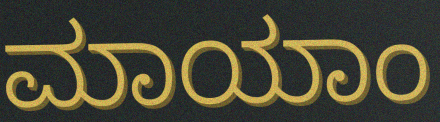
ಮಾಯಾಂ